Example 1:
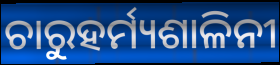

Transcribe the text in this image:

ଚାରୁହର୍ମ୍ୟଶାଳିନୀ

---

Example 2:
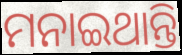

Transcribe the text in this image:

ମନାଇଥାନ୍ତି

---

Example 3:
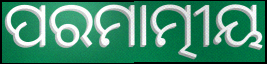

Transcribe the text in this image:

ପରମାତ୍ମୀୟ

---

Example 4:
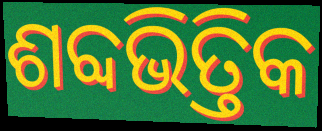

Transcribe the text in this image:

ଶବ୍ଦଭିତ୍ତିକ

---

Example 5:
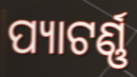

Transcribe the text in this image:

ପ୍ୟାଟର୍ଣ୍ଣ